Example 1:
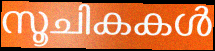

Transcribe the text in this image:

സൂചികകൾ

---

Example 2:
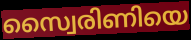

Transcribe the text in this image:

സ്വൈരിണിയെ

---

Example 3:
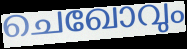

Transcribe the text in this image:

ചെഖോവും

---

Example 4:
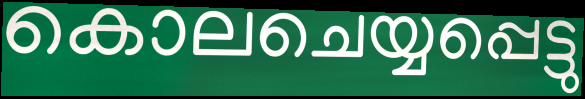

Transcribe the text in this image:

കൊലചെയ്യപ്പെട്ടു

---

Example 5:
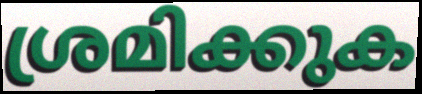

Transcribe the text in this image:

ശ്രമിക്കുക